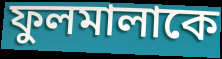
ফুলমালাকে